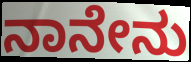
ನಾನೇನು